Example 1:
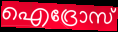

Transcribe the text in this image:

ഐദ്രോസ്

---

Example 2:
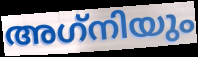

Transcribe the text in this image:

അഗ്‌നിയും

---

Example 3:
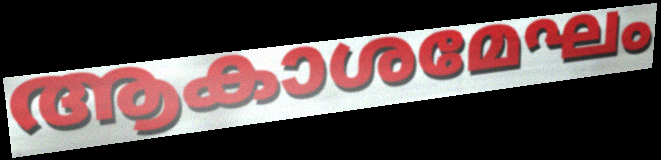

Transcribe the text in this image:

ആകാശമേഘം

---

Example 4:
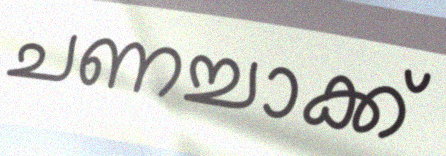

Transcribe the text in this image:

ചണച്ചാക്ക്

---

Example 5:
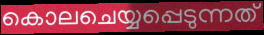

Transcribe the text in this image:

കൊലചെയ്യപ്പെടുന്നത്